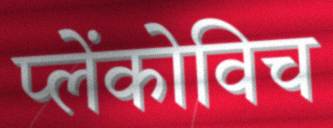
प्लेंकोविच